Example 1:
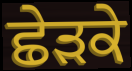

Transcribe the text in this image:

ਛੇੜਕੇ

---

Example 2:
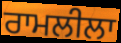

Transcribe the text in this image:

ਰਾਮਲੀਲਾ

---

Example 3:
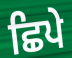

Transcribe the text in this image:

ਛਿਪੇ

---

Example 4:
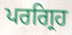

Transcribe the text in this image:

ਪਰਗ੍ਰਿਹ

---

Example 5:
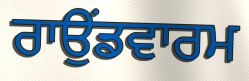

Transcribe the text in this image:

ਰਾਉਂਡਵਾਰਮ